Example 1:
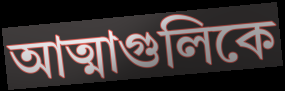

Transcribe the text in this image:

আত্মাগুলিকে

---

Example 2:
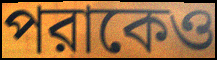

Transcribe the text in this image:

পরাকেও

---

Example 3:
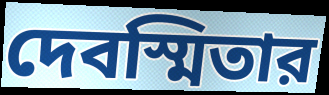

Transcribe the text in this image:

দেবস্মিতার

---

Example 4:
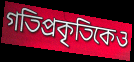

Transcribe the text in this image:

গতিপ্রকৃতিকেও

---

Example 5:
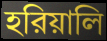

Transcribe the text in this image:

হরিয়ালি